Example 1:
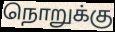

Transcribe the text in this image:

நொறுக்கு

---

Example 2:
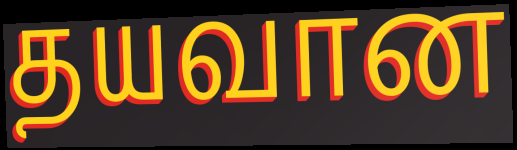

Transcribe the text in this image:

தயவான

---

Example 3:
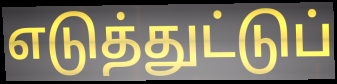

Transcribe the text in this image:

எடுத்துட்டுப்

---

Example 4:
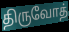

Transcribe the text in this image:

திருவோத்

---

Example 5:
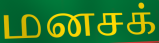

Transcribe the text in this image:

மனசக்